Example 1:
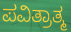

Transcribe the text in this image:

ಪವಿತ್ರಾತ್ಮ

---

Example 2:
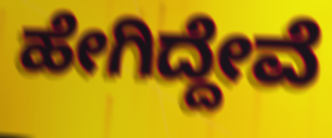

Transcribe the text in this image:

ಹೇಗಿದ್ದೇವೆ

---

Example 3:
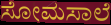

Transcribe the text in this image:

ಸೋಮಸಾಲೆ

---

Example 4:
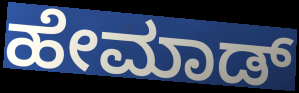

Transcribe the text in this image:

ಹೇಮಾಡ್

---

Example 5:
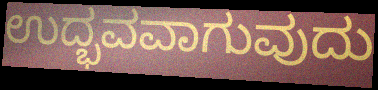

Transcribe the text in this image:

ಉದ್ಭವವಾಗುವುದು